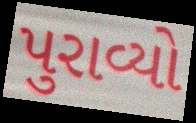
પુરાવ્યો